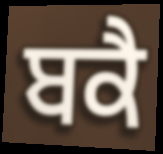
ਬਕੈ